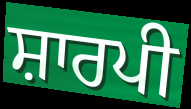
ਸ਼ਾਰਪੀ